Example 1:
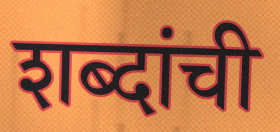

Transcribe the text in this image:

शब्दांची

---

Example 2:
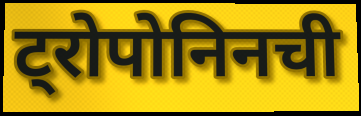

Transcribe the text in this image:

ट्रोपोनिनची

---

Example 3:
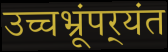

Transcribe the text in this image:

उच्चभ्रूंपर्यंत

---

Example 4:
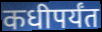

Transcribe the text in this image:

कधीपर्यंत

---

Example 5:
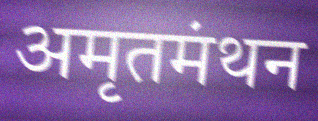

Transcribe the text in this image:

अमृतमंथन